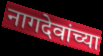
नागदेवांच्या